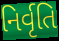
નિર્વૃતિ